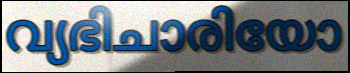
വ്യഭിചാരിയോ